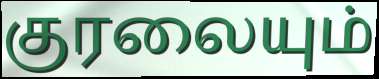
குரலையும்